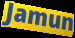
Jamun